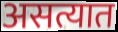
असत्यात